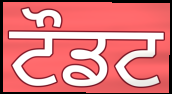
ਟੌਡਟ